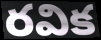
రవిక